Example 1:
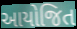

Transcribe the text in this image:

આયોજિત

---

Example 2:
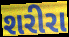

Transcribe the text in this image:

શરીરા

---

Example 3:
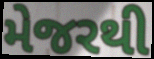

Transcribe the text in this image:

મેજરથી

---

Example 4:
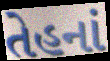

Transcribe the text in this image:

તેહનાં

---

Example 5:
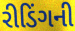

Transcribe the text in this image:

રીડિંગની